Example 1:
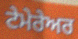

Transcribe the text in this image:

ਟੇਮੇਰੇਅਰ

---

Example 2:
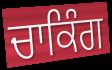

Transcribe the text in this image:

ਚਾਕਿੰਗ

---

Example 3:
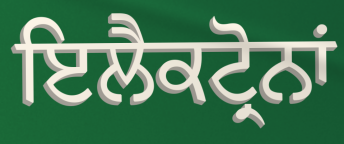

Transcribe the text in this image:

ਇਲੈਕਟ੍ਰੋਨਾਂ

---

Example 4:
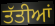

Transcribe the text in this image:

ਤੱਤੀਆਂ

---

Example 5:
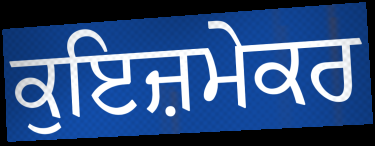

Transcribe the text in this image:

ਕੁਇਜ਼ਮੇਕਰ